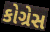
કોગ્રેસ